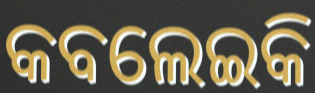
କବଲେଇକି